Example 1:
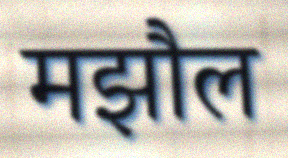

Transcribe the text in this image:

मझौल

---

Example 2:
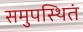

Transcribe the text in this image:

समुपस्थितं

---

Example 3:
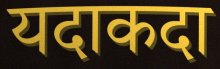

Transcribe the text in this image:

यदाकदा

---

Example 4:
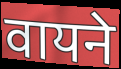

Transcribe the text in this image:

वायने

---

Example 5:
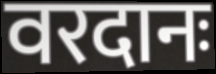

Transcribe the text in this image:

वरदानः